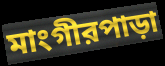
মাংগীরপাড়া